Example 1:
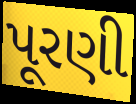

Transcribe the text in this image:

પૂરણી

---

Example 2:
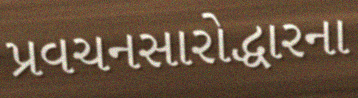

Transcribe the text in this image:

પ્રવચનસારોદ્ધારના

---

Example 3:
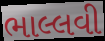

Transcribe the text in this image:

ભાલ્લવી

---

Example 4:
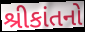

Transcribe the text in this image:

શ્રીકાંતનો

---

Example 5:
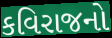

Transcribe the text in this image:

કવિરાજનો